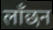
लाँछन